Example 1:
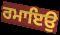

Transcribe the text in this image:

ਰਮਾਇਉ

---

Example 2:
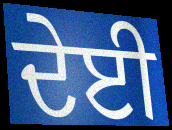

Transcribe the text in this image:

ਦੇਈ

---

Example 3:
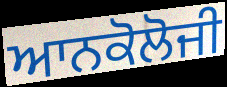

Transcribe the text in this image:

ਆਨਕੋਲੋਜੀ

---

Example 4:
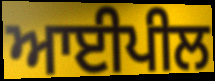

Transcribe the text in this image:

ਆਈਪੀਲ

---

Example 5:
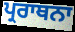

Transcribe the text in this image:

ਪ੍ਰਰਾਥਨਾ